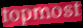
topmost